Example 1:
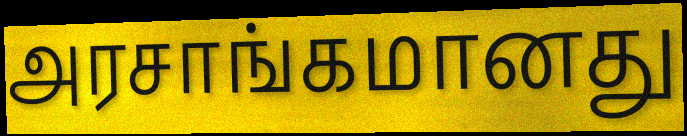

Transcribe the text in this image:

அரசாங்கமானது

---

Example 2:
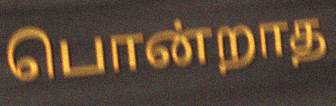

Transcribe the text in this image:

பொன்றாத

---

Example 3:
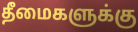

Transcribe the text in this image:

தீமைகளுக்கு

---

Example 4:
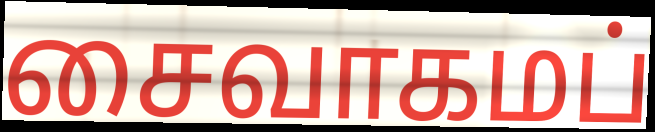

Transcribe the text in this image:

சைவாகமப்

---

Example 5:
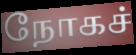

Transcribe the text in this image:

நோகச்